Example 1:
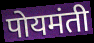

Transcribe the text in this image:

पोयमंती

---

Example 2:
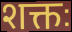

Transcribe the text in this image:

शक्तः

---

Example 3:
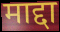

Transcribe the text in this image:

माद्दा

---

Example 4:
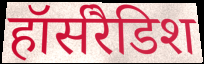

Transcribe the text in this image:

हॉर्सरैडिश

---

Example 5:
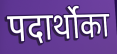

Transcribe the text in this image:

पदार्थोका